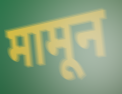
मामून